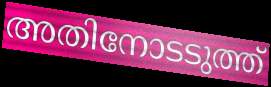
അതിനോടടുത്ത്